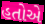
હતોએ